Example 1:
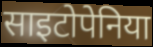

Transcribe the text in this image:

साइटोपेनिया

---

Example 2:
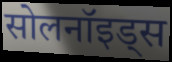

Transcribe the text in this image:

सोलनॉइड्स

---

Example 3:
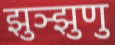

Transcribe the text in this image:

झुञ्झुणु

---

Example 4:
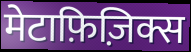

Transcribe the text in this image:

मेटाफ़िज़िक्स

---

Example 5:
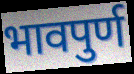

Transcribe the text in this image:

भावपुर्ण